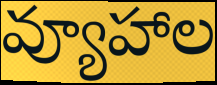
వ్యూహాల